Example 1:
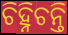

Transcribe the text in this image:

ଚିହ୍ନିଚନ୍ତି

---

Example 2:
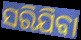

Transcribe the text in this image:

ସରିଯିବା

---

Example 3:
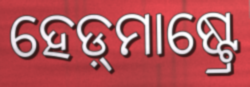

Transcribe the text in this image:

ହେଡ଼୍‍ମାଷ୍ଟ୍ରେ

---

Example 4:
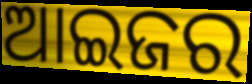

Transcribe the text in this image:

ଆଇଜର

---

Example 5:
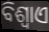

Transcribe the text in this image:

ବିଶ୍ୱାଏ